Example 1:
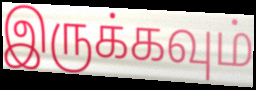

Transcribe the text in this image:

இருக்கவும்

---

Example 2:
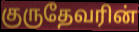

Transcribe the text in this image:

குருதேவரின்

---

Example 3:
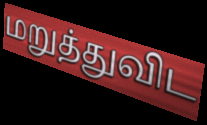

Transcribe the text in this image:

மறுத்துவிட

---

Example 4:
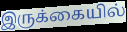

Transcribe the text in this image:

இருக்கையில்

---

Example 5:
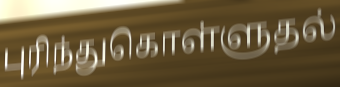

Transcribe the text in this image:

புரிந்துகொள்ளுதல்